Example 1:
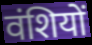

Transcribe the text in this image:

वंशियों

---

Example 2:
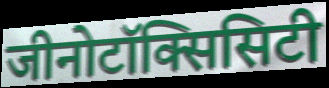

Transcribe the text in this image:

जीनोटॉक्सिसिटी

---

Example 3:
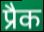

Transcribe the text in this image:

प्रैक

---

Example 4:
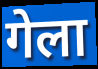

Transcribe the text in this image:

गेला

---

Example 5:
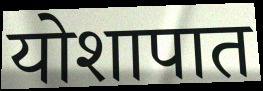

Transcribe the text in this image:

योशापात